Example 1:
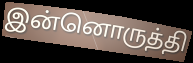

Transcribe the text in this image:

இன்னொருத்தி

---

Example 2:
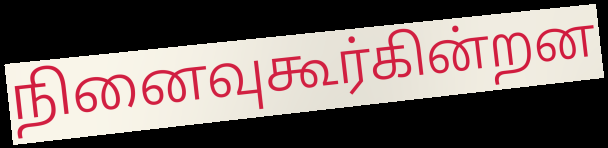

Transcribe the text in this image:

நினைவுகூர்கின்றன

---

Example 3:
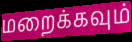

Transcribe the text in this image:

மறைக்கவும்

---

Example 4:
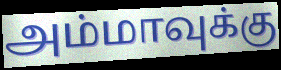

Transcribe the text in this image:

அம்மாவுக்கு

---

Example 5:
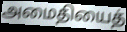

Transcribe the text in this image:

அமைதியைத்